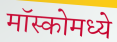
मॉस्कोमध्ये